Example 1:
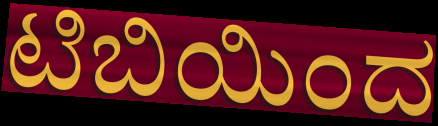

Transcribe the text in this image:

ಟಿಬಿಯಿಂದ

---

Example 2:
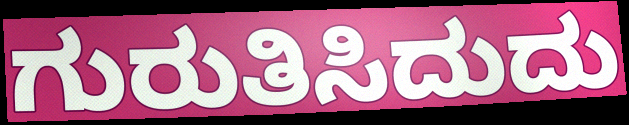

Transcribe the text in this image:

ಗುರುತಿಸಿದುದು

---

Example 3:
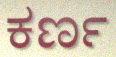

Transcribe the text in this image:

ಕರ್ಣ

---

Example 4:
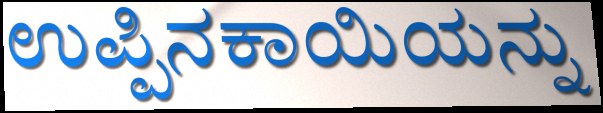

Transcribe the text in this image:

ಉಪ್ಪಿನಕಾಯಿಯನ್ನು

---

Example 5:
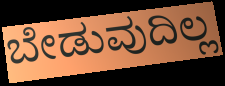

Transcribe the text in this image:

ಬೇಡುವುದಿಲ್ಲ